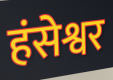
हंसेश्वर